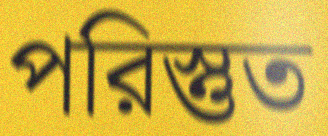
পরিস্তুত